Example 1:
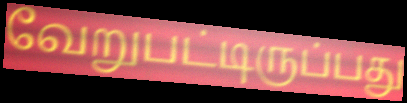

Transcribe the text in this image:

வேறுபட்டிருப்பது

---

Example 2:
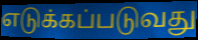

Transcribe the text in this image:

எடுக்கப்படுவது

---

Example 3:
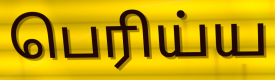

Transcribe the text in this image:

பெரிய்ய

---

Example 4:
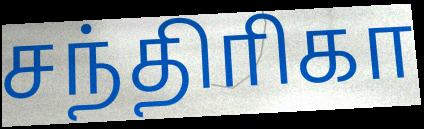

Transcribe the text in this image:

சந்திரிகா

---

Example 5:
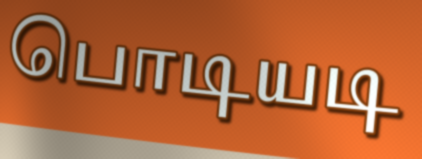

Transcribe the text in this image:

பொடியடி